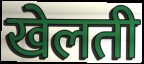
खेलती